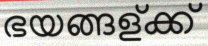
ഭയങ്ങള്ക്ക്